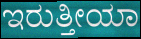
ಇರುತ್ತೀಯಾ